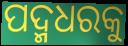
ପଦ୍ମଧରକୁ